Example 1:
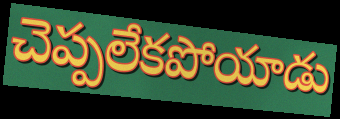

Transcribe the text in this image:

చెప్పలేకపోయాడు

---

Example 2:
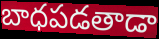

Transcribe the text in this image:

బాధపడతాడా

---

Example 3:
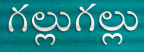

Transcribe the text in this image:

గల్లుగల్లు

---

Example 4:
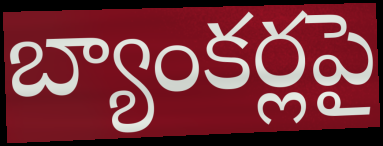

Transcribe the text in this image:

బ్యాంకర్లపై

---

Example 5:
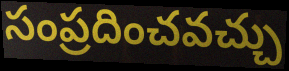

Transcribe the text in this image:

సంప్రదించవచ్చు